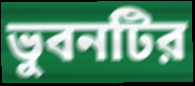
ভুবনটির